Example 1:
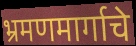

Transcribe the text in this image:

भ्रमणमार्गाचे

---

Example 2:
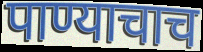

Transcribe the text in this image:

पाण्याचाच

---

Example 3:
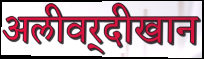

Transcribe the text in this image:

अलीवर्दीखान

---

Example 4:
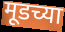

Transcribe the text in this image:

मूडच्या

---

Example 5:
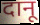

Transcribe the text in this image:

दानू